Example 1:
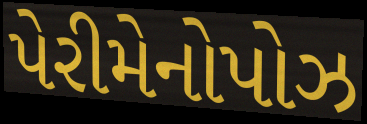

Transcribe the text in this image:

પેરીમેનોપોઝ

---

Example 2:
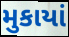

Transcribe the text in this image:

મુકાયાં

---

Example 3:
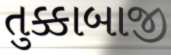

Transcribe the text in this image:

તુક્કાબાજી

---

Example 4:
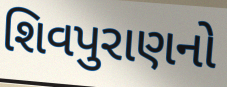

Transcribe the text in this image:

શિવપુરાણનો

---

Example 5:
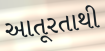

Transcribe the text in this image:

આતૂરતાથી